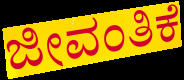
ಜೀವಂತಿಕೆ